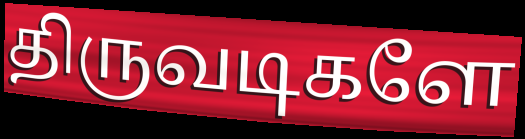
திருவடிகளே